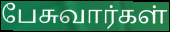
பேசுவார்கள்